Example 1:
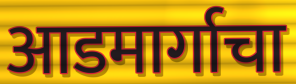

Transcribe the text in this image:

आडमार्गाचा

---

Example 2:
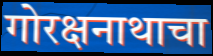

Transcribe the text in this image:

गोरक्षनाथाचा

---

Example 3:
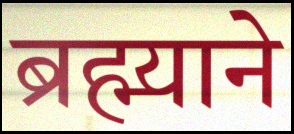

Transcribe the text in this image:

ब्रह्म्याने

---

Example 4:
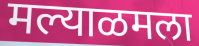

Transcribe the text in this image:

मल्याळमला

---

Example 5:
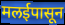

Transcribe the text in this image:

मलईपासून